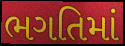
ભગતિમાં